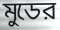
মুডের